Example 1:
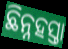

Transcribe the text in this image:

ଛିନ୍ନହସ୍ତା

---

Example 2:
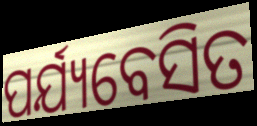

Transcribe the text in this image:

ପର୍ଯ୍ୟବେସିତ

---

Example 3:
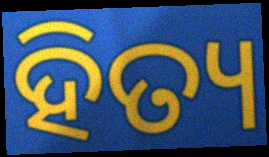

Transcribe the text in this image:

ହିତ୍ୟ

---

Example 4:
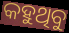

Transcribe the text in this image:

କହୁଥିବୁ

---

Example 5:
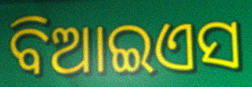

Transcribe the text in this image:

ବିଆଇଏସ